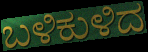
ಬಳಿಕುಳಿದ